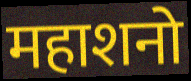
महाशनो